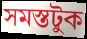
সমস্তটুক